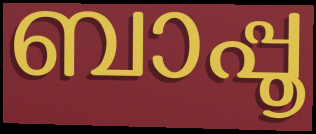
ബാപ്പൂ